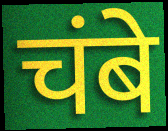
चंबे